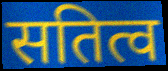
सतित्व